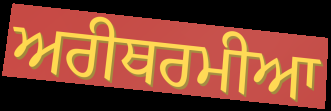
ਅਰੀਥਰਮੀਆ